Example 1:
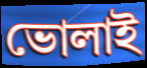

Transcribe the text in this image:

ভোলাই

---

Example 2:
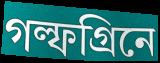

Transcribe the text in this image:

গল্ফগ্রিনে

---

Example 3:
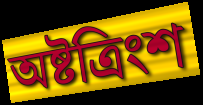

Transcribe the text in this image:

অষ্টত্রিংশ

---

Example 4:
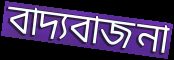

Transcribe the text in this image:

বাদ্যবাজনা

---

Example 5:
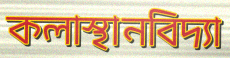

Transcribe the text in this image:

কলাস্থানবিদ্যা